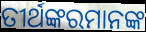
ତୀର୍ଥଙ୍କରମାନଙ୍କ